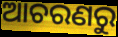
ଆଚରଣରୁ